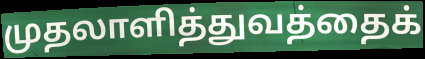
முதலாளித்துவத்தைக்